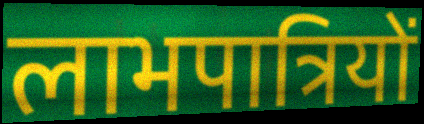
लाभपात्रियों